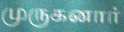
முருகனார்